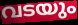
വടയും